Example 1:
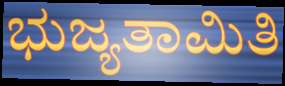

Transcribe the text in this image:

ಭುಜ್ಯತಾಮಿತಿ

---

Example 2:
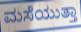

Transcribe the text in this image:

ಮಸೆಯುತ್ತಾ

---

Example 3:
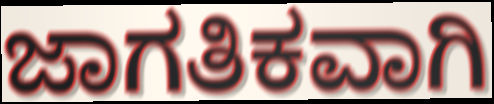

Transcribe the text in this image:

ಜಾಗತಿಕವಾಗಿ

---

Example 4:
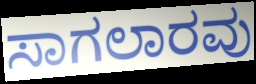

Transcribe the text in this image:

ಸಾಗಲಾರವು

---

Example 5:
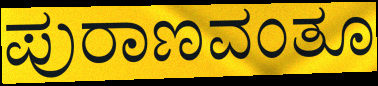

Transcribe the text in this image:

ಪುರಾಣವಂತೂ